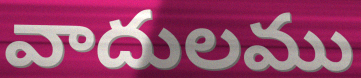
వాదులము